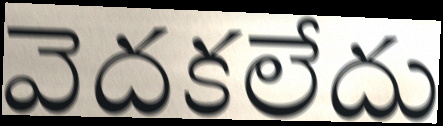
వెదకలేదు